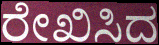
ರೇಖಿಸಿದ